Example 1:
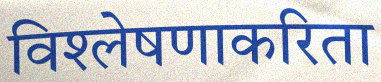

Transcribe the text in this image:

विश्लेषणाकरिता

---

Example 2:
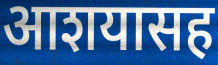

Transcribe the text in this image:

आशयासह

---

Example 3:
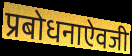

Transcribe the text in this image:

प्रबोधनाऐवजी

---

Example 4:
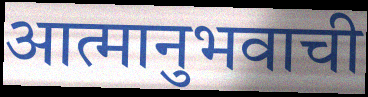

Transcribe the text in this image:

आत्मानुभवाची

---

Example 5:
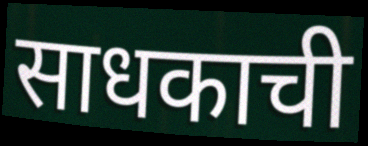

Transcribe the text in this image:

साधकाची